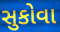
સુકોવા